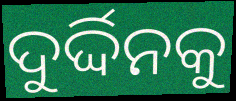
ଦୁର୍ଦ୍ଦିନକୁ